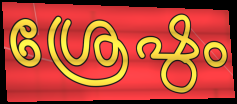
ശ്രേഷ്ഠം